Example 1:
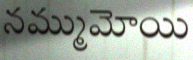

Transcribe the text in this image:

నమ్ముమోయి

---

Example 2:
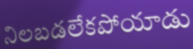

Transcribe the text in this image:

నిలబడలేకపోయాడు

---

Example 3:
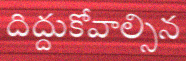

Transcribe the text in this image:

దిద్దుకోవాల్సిన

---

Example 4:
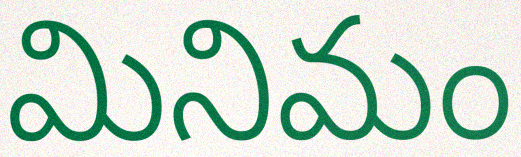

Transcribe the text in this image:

మినిమం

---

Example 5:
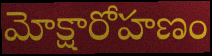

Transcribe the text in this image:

మోక్షారోహణం